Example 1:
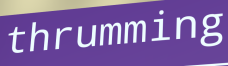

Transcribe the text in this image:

thrumming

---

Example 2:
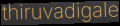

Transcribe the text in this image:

thiruvadigale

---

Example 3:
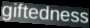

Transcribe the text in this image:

giftedness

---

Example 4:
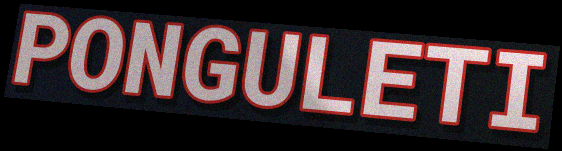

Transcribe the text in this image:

PONGULETI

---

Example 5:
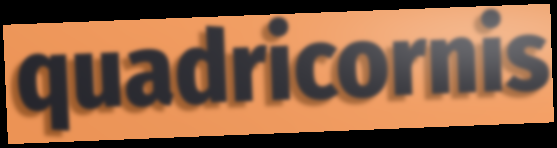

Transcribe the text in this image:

quadricornis